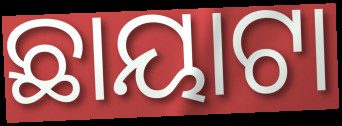
ଛାୟାଟା